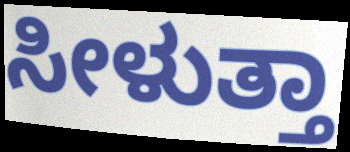
ಸೀಳುತ್ತಾ